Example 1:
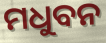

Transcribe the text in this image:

ମଧୁବନ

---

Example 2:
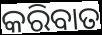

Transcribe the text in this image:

କରିବାତ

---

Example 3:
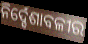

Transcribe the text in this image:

ନିର୍ଦ୍ଦେଶାବଳୀର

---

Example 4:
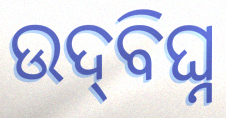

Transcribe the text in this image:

ଉଦ୍‍ବିଘ୍ନ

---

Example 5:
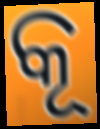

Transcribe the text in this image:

କୂ